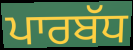
ਪਾਰਬੱਧ